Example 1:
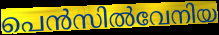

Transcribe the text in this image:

പെൻസിൽവേനിയ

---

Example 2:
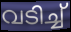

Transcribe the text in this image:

വടിച്ച്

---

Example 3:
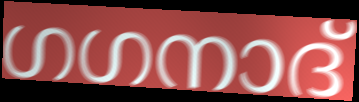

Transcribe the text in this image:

ഗഗനാദ്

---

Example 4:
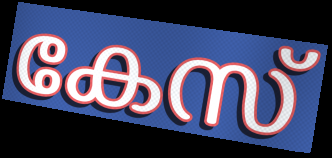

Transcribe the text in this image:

കേസ്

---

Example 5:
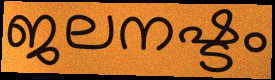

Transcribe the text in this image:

ജലനഷ്ടം